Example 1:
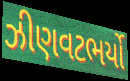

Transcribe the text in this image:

ઝીણવટભર્યો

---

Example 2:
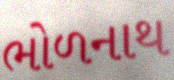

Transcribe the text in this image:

ભોળનાથ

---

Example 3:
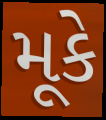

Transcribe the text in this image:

મૂકે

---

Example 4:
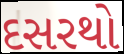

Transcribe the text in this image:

દસરથો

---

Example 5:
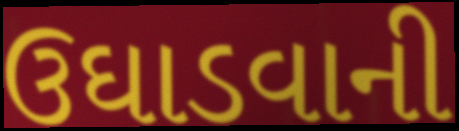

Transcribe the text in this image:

ઉઘાડવાની